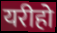
यरीहो